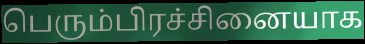
பெரும்பிரச்சினையாக